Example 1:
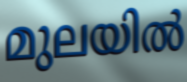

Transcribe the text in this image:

മുലയിൽ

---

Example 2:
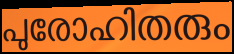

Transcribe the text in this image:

പുരോഹിതരും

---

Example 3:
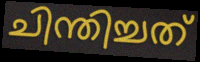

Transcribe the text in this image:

ചിന്തിച്ചത്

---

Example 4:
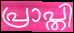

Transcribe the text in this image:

പ്രാപ്തി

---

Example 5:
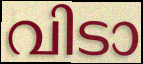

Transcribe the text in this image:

വിടാ